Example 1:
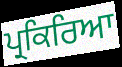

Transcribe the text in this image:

ਪ੍ਰਕਿਰਿਆ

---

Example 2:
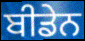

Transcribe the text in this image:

ਬੀਡੇਨ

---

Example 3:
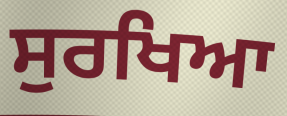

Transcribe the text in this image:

ਸੁਰਖਿਆ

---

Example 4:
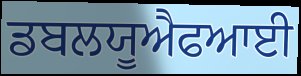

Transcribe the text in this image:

ਡਬਲਯੂਐਫਆਈ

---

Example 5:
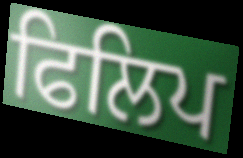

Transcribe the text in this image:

ਫਿਲਿਪ